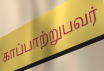
காப்பாற்றுபவர்